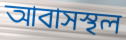
আবাসস্থল